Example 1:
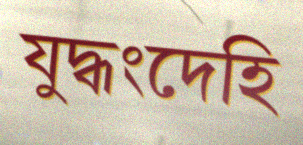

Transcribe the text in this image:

যুদ্ধংদেহি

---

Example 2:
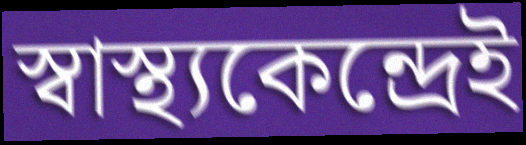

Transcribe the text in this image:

স্বাস্থ্যকেন্দ্রেই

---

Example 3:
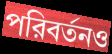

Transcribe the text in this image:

পরিবর্তনও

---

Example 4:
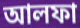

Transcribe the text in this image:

আলফা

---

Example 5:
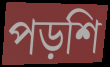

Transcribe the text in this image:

পড়শি